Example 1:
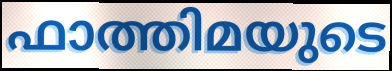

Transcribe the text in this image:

ഫാത്തിമയുടെ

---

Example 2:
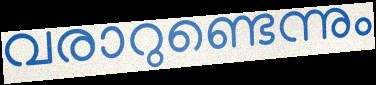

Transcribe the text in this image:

വരാറുണ്ടെന്നും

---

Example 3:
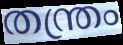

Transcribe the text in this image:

തന്ത്രം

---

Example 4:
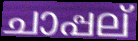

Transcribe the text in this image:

ചാപ്പല്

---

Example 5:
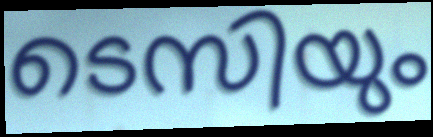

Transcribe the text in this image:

ടെസിയും